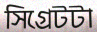
সিগ্রেটটা